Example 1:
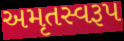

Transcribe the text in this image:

અમૃતસ્વરૂપ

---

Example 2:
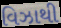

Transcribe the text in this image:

વિઝાથી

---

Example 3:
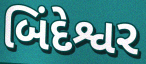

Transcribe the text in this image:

બિંદેશ્વર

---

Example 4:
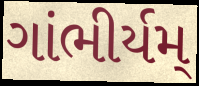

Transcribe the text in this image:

ગાંભીર્યમ્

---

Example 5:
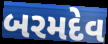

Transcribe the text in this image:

બરમદેવ